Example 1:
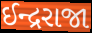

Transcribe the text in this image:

ઈન્દ્રરાજા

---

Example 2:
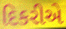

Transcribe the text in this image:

દિકરીએ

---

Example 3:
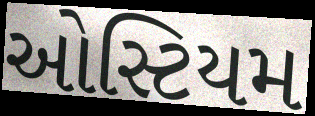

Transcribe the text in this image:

ઓસ્ટિયમ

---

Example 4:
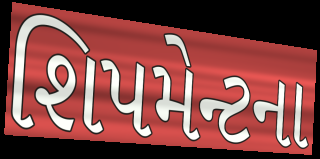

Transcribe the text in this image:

શિપમેન્ટના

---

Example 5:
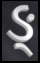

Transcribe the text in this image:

ઙ્